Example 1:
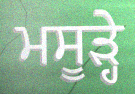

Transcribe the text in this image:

ਮਸੂੜ੍ਹੇ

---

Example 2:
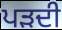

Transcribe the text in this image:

ਪੜਦੀ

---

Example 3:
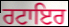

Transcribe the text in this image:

ਰਟਾਇਰ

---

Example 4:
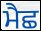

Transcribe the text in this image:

ਮੈਛ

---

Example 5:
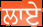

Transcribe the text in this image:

ਲਾਏ